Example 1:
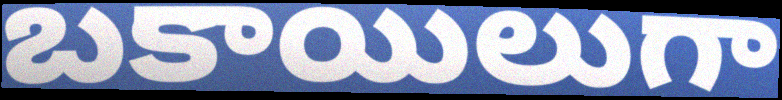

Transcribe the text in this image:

బకాయిలుగా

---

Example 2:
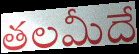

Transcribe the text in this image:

తలమీదే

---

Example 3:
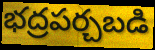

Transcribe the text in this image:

భద్రపర్చబడి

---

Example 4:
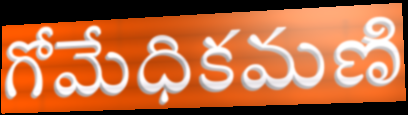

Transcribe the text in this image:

గోమేధికమణి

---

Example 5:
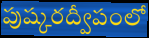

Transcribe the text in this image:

పుష్కరద్వీపంలో